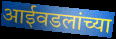
आईवडलांच्या